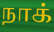
நாக்